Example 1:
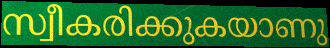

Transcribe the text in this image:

സ്വീകരിക്കുകയാണു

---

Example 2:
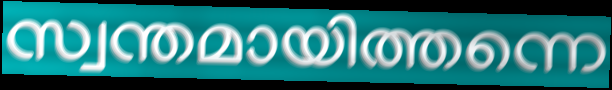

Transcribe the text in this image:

സ്വന്തമായിത്തന്നെ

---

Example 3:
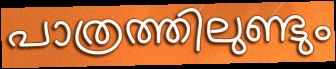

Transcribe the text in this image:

പാത്രത്തിലുണ്ടും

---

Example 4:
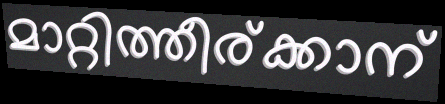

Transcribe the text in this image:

മാറ്റിത്തീര്ക്കാന്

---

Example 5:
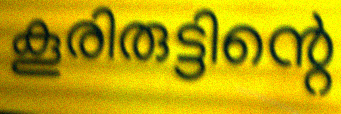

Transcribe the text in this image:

കൂരിരുട്ടിന്റെ